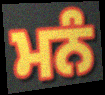
ਮਨੰ